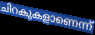
ചിറകുകളാണെന്ന്